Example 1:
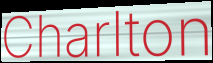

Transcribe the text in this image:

Charlton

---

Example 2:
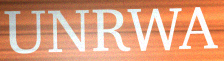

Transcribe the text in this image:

UNRWA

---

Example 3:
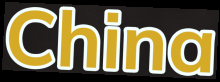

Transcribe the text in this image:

China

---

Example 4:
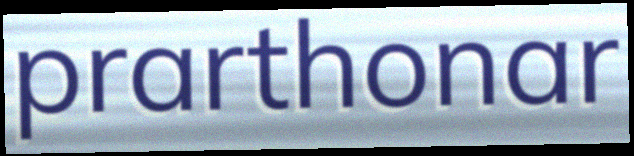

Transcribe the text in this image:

prarthonar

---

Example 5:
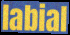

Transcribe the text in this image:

labial